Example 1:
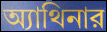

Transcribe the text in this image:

অ্যাথিনার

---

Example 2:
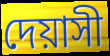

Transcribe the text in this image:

দেয়াসী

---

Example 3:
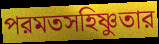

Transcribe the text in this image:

পরমতসহিষ্ণুতার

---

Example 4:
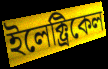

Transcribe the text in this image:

ইলেক্ট্রিকেল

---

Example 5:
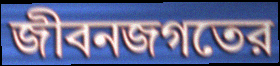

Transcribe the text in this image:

জীবনজগতের